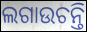
ଲଗାଉଚନ୍ତି